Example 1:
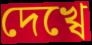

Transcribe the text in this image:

দেখ্বে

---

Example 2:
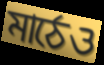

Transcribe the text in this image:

মাঠেও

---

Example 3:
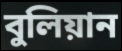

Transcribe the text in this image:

বুলিয়ান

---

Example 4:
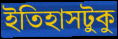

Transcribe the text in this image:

ইতিহাসটুকু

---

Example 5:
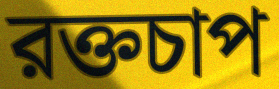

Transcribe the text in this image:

রক্তচাপ